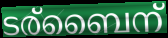
ടര്ബൈന്